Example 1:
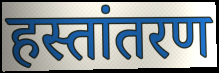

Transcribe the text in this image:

हस्तांतरण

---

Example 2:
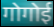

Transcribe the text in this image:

गोगोई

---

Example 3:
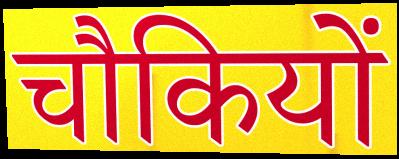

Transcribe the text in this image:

चौकियों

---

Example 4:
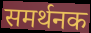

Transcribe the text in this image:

समर्थनक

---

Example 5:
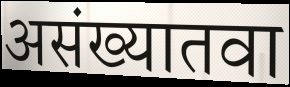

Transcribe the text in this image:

असंख्यातवा